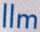
llm